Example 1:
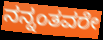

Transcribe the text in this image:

ನನ್ನಂತವರೇ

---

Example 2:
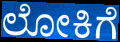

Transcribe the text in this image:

ಲೋಕಿಗೆ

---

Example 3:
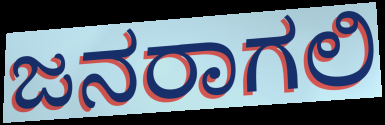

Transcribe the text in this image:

ಜನರಾಗಲಿ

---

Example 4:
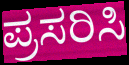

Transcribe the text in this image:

ಪ್ರಸರಿಸಿ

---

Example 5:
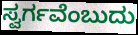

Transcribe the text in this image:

ಸ್ವರ್ಗವೆಂಬುದು